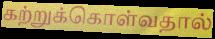
கற்றுக்கொள்வதால்